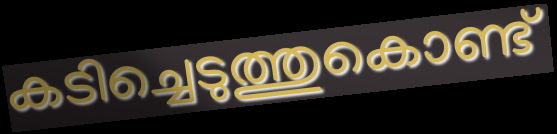
കടിച്ചെടുത്തുകൊണ്ട്